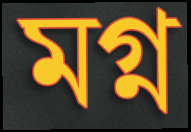
মগ্ন